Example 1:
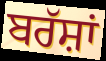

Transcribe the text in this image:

ਬਰੱਸ਼ਾਂ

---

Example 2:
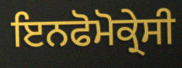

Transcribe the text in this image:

ਇਨਫੋਮੋਕ੍ਰੇਸੀ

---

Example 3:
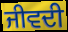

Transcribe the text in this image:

ਜੀਵਦੀ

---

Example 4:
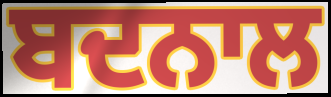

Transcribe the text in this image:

ਬਦਨਾਲ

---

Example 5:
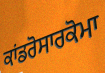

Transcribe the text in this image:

ਕਾਂਡਰੋਸਾਰਕੋਮਾ